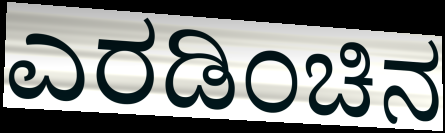
ಎರಡಿಂಚಿನ